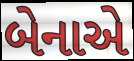
બેનાએ